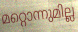
മറ്റൊന്നുമില്ല